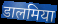
डालमिया